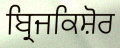
ਬ੍ਰਿਜਕਿਸ਼ੋਰ